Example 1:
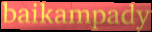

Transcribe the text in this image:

baikampady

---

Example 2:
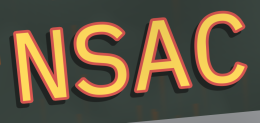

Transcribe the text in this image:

NSAC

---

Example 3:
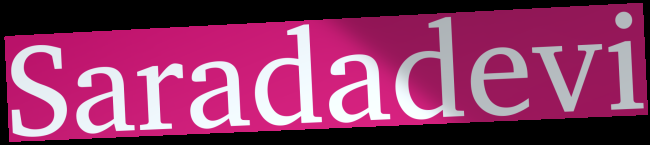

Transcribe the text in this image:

Saradadevi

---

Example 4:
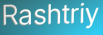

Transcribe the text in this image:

Rashtriy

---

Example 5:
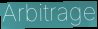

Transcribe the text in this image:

Arbitrage